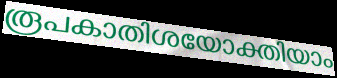
രൂപകാതിശയോക്തിയാം